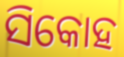
ସିକୋହ